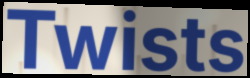
Twists